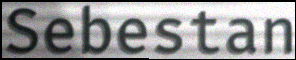
Sebestan